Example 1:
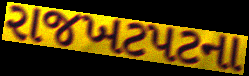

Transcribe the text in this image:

રાજખટપટના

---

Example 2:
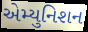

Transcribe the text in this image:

એમ્યુનિશન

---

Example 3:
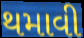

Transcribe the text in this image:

થમાવી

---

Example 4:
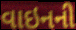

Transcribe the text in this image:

વાઇનની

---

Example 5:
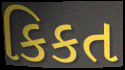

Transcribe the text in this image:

કિકત